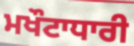
ਮਖੌਟਾਧਾਰੀ